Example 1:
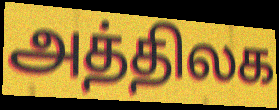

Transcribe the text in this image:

அத்திலக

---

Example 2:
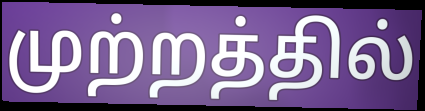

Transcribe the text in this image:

முற்றத்தில்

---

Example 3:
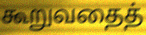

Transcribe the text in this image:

கூறுவதைத்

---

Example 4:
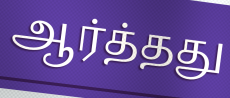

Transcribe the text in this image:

ஆர்த்தது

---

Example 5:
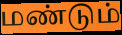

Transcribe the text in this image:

மண்டும்